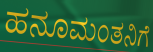
ಹನೂಮಂತನಿಗೆ